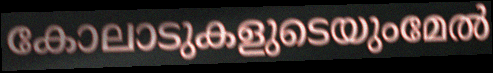
കോലാടുകളുടെയുംമേൽ